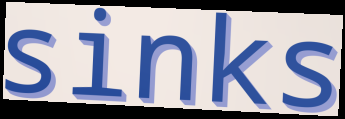
sinks